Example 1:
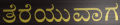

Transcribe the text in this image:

ತೆರೆಯುವಾಗ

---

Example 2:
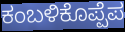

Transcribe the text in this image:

ಕಂಬಳಿಕೊಪ್ಪೆಪ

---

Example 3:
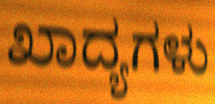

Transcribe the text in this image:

ಖಾದ್ಯಗಳು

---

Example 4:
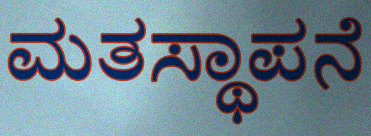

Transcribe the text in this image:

ಮತಸ್ಥಾಪನೆ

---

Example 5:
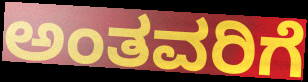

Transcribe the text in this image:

ಅಂತವರಿಗೆ